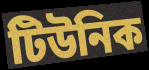
টিউনিক